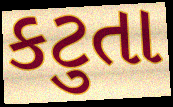
કટુતા